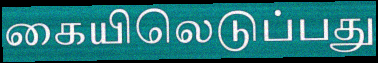
கையிலெடுப்பது